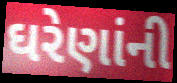
ઘરેણાંની